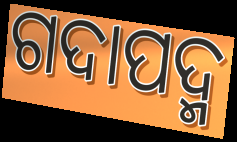
ଗଦାପଦ୍ମ